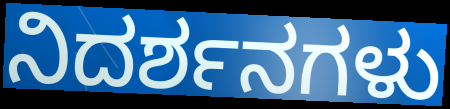
ನಿದರ್ಶನಗಳು